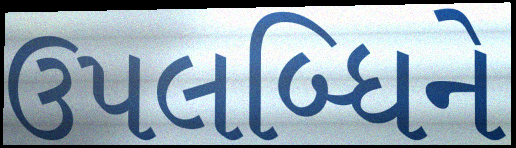
ઉપલબ્ધિને